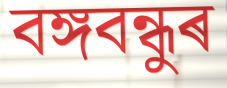
বঙ্গবন্ধুৰ